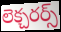
లెక్చరర్స్